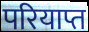
परियाप्त